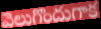
వెలుగొందుగాక